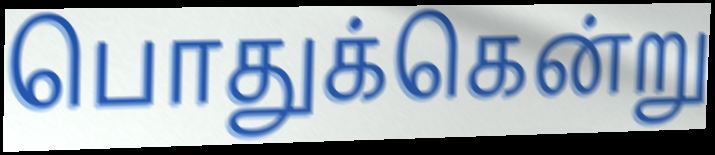
பொதுக்கென்று